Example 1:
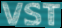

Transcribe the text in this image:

VST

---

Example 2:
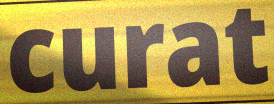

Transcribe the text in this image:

curat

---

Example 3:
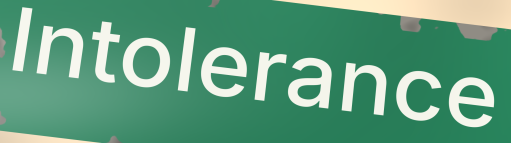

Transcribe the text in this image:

Intolerance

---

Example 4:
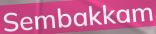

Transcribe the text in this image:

Sembakkam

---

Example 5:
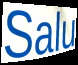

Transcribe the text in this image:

Salu